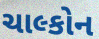
ચાલ્કોન